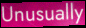
Unusually